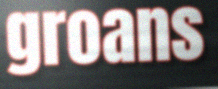
groans